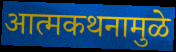
आत्मकथनामुळे